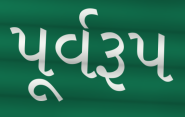
પૂર્વરૂપ